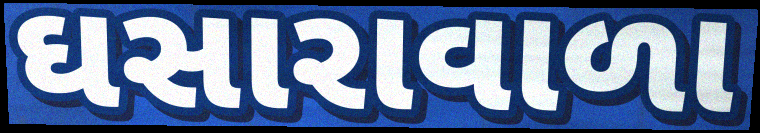
ઘસારાવાળા